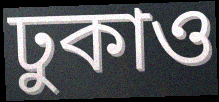
ঢুকাও